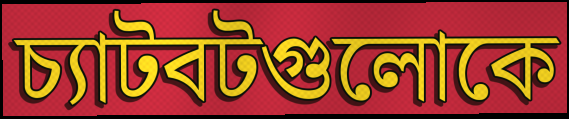
চ্যাটবটগুলোকে